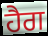
ਹੈਗ